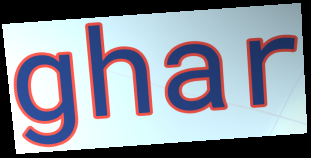
ghar